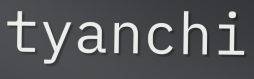
tyanchi